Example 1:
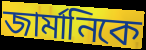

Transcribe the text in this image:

জার্মানিকে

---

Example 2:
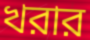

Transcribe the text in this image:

খরার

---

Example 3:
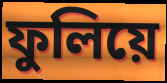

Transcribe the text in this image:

ফুলিয়ে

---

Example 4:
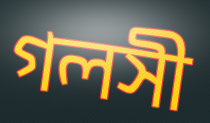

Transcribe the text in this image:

গলসী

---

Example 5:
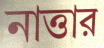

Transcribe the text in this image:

নাত্তার